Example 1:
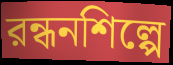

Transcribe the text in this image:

রন্ধনশিল্পে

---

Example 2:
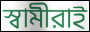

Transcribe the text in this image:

স্বামীরাই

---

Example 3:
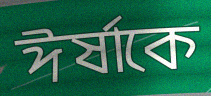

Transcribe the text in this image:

ঈর্ষাকে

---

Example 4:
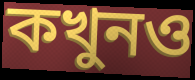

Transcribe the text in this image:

কখুনও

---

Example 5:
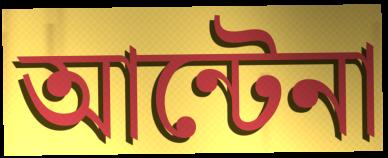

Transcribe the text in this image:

আন্টেনা